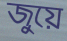
জুয়ে